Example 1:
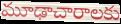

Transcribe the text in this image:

మూఢాచారాలకు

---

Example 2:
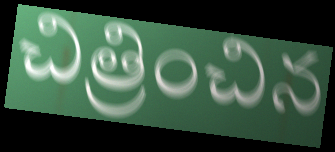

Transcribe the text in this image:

చిత్రించిన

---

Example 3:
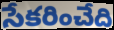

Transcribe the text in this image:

సేకరించేది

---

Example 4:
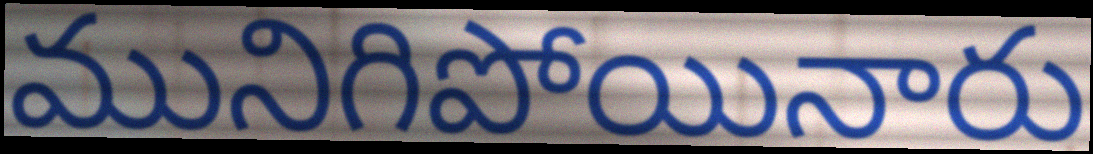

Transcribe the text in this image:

మునిగిపోయినారు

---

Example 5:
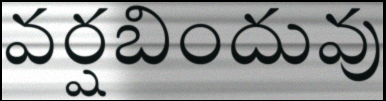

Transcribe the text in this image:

వర్షబిందువు